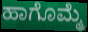
ಹಾಗೊಮ್ಮೆ